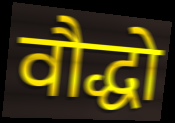
वौद्धो